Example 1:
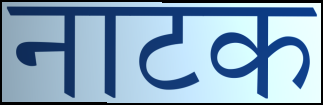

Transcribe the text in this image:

नाटक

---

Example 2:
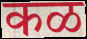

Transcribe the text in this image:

कळ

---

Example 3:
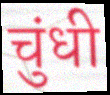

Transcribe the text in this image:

चुंधी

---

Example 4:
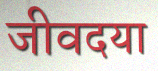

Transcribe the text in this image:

जीवदया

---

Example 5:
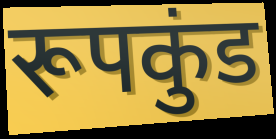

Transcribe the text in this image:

रूपकुंड